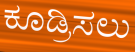
ಕೂಡ್ರಿಸಲು